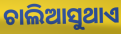
ଚାଲିଆସୁଥାଏ